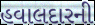
હવાલદારની